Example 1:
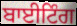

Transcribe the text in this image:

ਬਾਈਟਿੰਗ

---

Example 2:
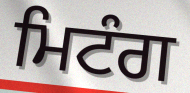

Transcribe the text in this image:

ਮਿਟੰਗ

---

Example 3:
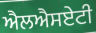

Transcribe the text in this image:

ਐਲਐਸਏਟੀ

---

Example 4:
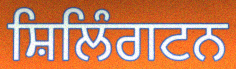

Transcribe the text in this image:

ਸ਼ਿਲਿੰਗਟਨ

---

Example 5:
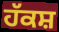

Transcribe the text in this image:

ਹੱਕਸ਼